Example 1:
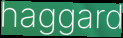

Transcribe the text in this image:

haggard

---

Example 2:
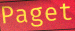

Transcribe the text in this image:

Paget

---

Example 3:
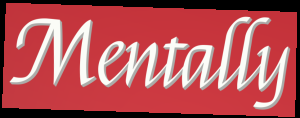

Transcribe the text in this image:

Mentally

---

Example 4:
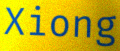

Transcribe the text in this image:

Xiong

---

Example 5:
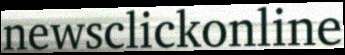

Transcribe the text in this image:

newsclickonline